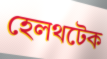
হেলথটেক